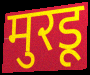
मुरडू